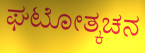
ಘಟೋತ್ಕಚನ